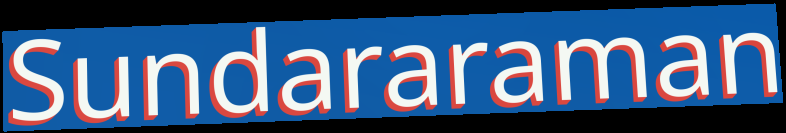
Sundararaman